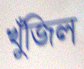
খুঁজিল